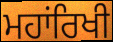
ਮਹਾਂਰਿਖੀ